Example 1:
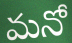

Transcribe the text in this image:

మనో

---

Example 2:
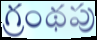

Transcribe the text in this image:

గ్రంథపు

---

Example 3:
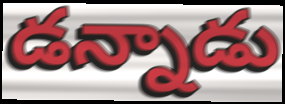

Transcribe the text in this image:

డన్నాడు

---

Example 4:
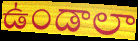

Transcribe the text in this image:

ఉండాలా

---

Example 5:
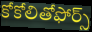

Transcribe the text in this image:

కోకోలితోఫోర్స్